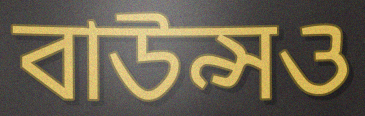
বাউন্সও